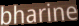
bharine